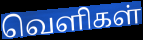
வெளிகள்